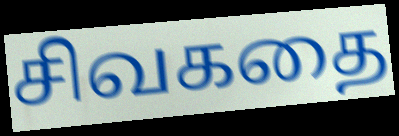
சிவகதை